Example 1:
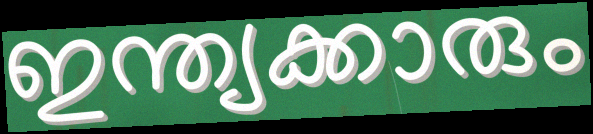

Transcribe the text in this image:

ഇന്ത്യക്കാരും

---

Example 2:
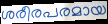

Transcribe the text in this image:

ശരീരപരമായ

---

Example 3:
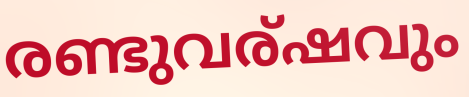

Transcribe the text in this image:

രണ്ടുവര്ഷവും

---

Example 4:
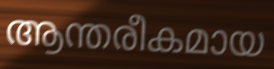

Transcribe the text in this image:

ആന്തരീകമായ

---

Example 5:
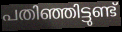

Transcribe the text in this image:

പതിഞ്ഞിട്ടുണ്ട്